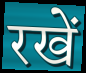
रखें